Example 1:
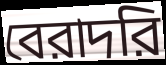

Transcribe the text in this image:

বেরাদরি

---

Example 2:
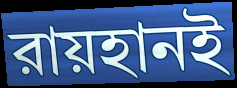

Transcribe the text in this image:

রায়হানই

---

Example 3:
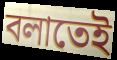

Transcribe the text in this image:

বলাতেই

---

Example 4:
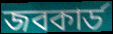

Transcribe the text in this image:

জবকার্ড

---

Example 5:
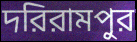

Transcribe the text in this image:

দরিরামপুর